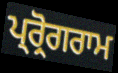
ਪ੍ਰ੍ਰੋਗਰਾਮ